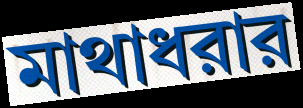
মাথাধরার